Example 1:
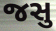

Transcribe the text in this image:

જસુ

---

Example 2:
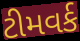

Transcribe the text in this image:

ટીમવર્ક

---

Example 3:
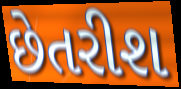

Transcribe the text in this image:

છેતરીશ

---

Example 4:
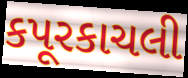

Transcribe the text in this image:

કપૂરકાચલી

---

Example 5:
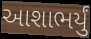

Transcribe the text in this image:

આશાભર્યું